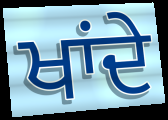
ਖਾਂਦੇ